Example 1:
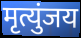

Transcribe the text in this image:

मृत्युंजय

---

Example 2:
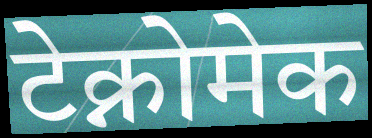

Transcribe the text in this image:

टेक्नोमेक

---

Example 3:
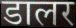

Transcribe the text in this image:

डालर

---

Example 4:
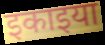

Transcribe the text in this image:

इकाइया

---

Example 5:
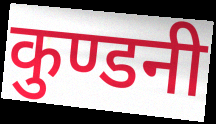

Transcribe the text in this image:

कुण्डनी